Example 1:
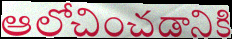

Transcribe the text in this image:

ఆలోచించడానికి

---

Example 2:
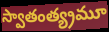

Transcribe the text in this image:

స్వాతంత్య్రమూ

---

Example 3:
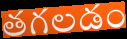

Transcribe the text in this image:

తగలడం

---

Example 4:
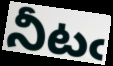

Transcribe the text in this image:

నీటఁ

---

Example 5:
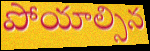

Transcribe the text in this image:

పోయాల్సిన